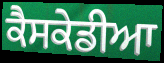
ਕੈਸਕੇਡੀਆ